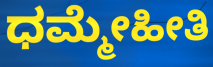
ಧಮ್ಮೇಹೀತಿ